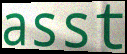
asst